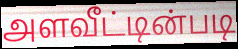
அளவீட்டின்படி